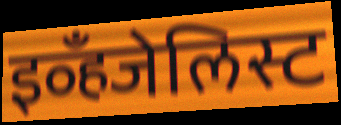
इव्हँजेलिस्ट